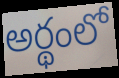
అర్థంలో